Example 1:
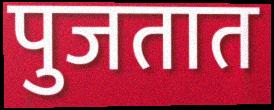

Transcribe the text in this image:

पुजतात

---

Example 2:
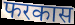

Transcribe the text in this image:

फरकास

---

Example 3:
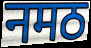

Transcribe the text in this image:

नमठ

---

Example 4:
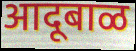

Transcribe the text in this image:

आदूबाळ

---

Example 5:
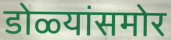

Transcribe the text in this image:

डोळ्यांसमोर